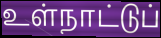
உள்நாட்டுப்